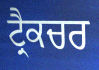
ਟ੍ਰੈਕਚਰ